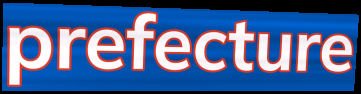
prefecture